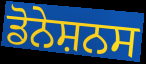
ਡੋਨੇਸ਼ਨਸ